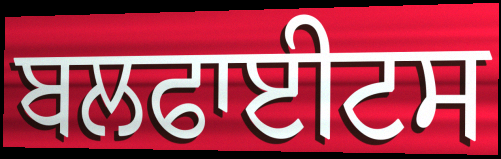
ਬਲਫਾਈਟਸ